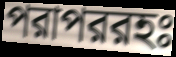
পরাপররহঃ